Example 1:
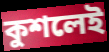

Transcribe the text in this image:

কুশলেই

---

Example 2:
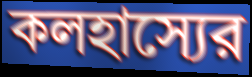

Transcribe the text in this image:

কলহাস্যের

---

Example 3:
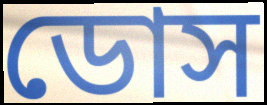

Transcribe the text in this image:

ডোস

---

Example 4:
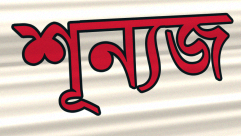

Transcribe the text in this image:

শূন্যজ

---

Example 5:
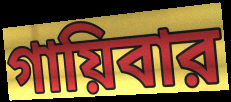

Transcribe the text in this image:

গায়িবার